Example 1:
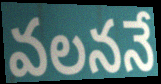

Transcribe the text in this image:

వలననే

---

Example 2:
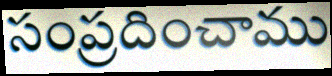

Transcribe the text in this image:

సంప్రదించాము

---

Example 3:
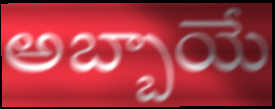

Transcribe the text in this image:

అబ్బాయే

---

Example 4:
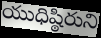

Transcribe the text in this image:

యుధిష్ఠిరుని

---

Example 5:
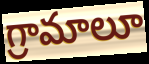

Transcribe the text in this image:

గ్రామాలూ